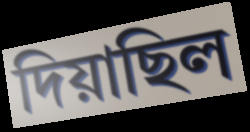
দিয়াছিল